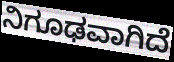
ನಿಗೂಢವಾಗಿದೆ